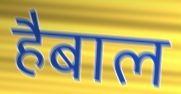
हैबाल